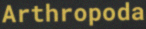
Arthropoda